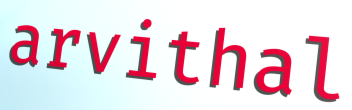
arvithal